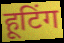
हूटिंग